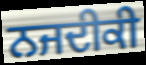
ਨਜਦੀਕੀ